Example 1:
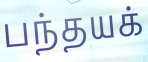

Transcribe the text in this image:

பந்தயக்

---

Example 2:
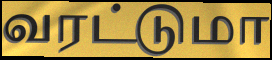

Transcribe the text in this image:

வரட்டுமா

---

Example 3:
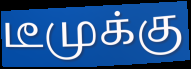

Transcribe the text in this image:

டீமுக்கு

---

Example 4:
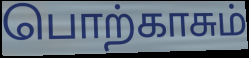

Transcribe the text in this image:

பொற்காசும்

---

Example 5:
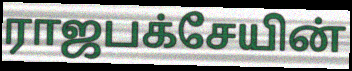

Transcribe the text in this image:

ராஜபக்சேயின்